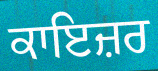
ਕਾਇਜ਼ਰ